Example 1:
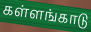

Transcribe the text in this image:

கள்ளங்காடு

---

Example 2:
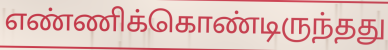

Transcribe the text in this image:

எண்ணிக்கொண்டிருந்தது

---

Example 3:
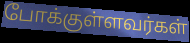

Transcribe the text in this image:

போக்குள்ளவர்கள்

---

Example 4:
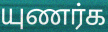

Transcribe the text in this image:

யுணர்க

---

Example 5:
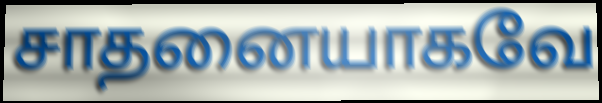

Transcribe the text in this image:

சாதனையாகவே